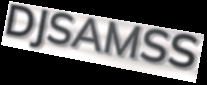
DJSAMSS